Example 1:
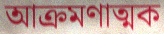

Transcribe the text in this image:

আক্ৰমণাত্মক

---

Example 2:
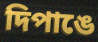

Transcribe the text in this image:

দিপাঙে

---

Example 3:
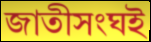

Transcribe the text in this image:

জাতীসংঘই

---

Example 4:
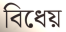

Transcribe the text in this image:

বিধেয়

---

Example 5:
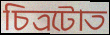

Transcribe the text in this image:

চিত্ৰটোত